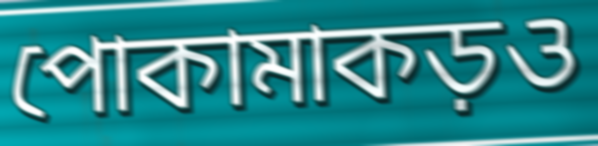
পোকামাকড়ও